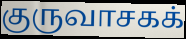
குருவாசகக்